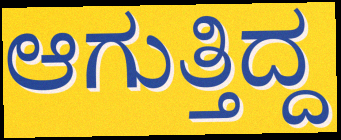
ಆಗುತ್ತಿದ್ದ